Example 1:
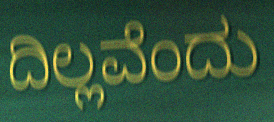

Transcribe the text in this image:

ದಿಲ್ಲವೆಂದು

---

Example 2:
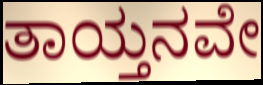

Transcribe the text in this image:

ತಾಯ್ತನವೇ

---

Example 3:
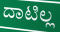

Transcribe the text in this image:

ದಾಟಿಲ್ಲ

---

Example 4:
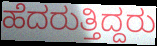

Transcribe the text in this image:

ಹೆದರುತ್ತಿದ್ದರು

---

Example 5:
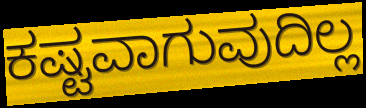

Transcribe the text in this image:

ಕಷ್ಟವಾಗುವುದಿಲ್ಲ